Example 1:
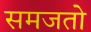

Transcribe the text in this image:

समजतो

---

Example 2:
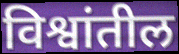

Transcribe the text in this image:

विश्वांतील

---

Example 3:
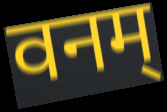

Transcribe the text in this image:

वनम्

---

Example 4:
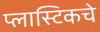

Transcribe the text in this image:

प्लास्टिकचे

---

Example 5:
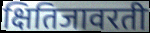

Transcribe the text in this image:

क्षितिजावरती